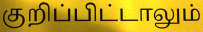
குறிப்பிட்டாலும்